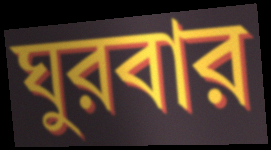
ঘুরবার